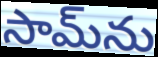
సామ్‌ను